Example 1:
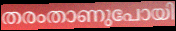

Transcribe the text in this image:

തരംതാണുപോയി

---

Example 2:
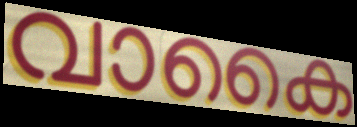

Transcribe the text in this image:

വാകൈ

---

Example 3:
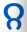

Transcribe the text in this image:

റ്റ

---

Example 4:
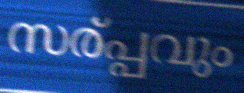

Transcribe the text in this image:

സര്പ്പവും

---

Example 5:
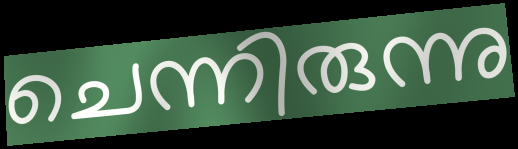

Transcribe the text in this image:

ചെന്നിരുന്നു